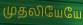
முதலியேயே